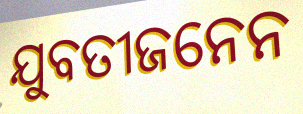
ଯୁବତୀଜନେନ